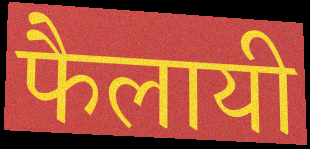
फैलायी